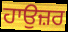
ਹਾਉਜ਼ਰ